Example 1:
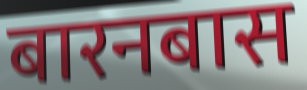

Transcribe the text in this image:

बारनबास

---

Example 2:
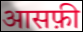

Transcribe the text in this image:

आसफ़ी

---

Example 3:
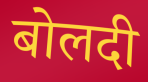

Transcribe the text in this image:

बोलदी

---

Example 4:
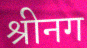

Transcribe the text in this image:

श्रीनग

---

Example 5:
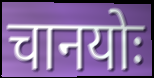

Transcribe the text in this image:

चानयोः